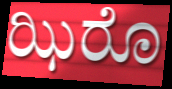
ಝಿರೊ